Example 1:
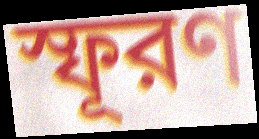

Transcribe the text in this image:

স্ফূরণ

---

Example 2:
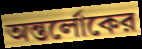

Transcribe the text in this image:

অন্তর্লোকের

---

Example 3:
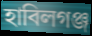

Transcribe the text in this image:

হাবিলগঞ্জ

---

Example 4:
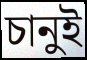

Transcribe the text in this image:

চানুই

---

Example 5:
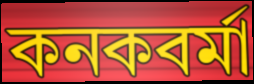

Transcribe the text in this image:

কনকবর্মা